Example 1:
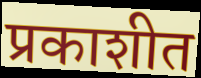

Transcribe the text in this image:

प्रकाशीत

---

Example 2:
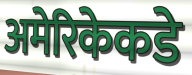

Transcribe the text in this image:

अमेरिकेकडे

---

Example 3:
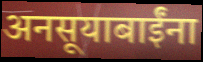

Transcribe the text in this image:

अनसूयाबाईंना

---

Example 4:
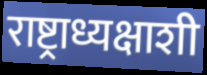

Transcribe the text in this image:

राष्ट्राध्यक्षाशी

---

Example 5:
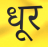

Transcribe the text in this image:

धूर